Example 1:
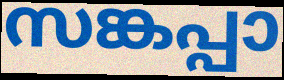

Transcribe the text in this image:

സങ്കപ്പാ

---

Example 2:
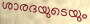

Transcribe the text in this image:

ശാരദയുടെയും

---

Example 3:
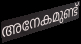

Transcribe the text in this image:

അനേകമുണ്ട്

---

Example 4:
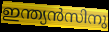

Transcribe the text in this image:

ഇന്ത്യൻസിനു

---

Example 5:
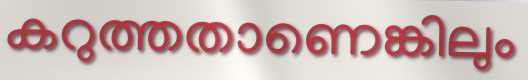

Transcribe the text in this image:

കറുത്തതാണെങ്കിലും